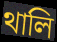
থালি